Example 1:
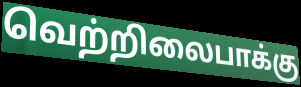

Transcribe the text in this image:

வெற்றிலைபாக்கு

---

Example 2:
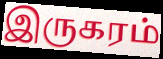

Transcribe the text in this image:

இருகரம்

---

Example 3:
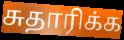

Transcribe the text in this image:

சுதாரிக்க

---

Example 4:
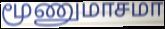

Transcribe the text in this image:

மூணுமாசமா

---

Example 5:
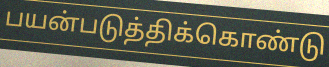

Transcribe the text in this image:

பயன்படுத்திக்கொண்டு